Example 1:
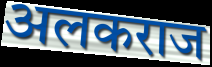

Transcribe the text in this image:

अलकराज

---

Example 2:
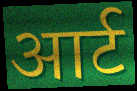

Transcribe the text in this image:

आर्ट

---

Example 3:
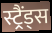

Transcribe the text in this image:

स्ट्रैंड्स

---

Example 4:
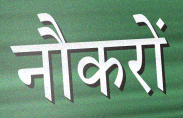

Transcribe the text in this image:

नौकरों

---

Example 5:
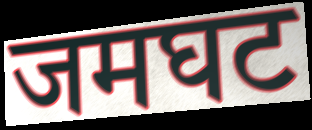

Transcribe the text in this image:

जमघट